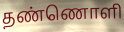
தண்ணொளி